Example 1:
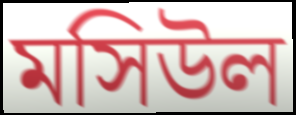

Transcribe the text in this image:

মসিউল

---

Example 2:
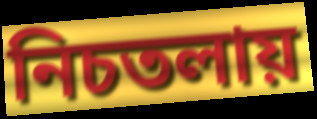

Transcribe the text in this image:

নিচতলায়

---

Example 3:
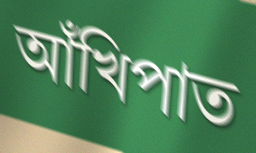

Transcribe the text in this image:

আঁখিপাত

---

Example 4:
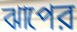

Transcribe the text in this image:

ঝাপের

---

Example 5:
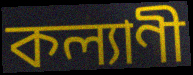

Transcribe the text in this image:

কল্যাণী